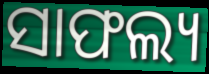
ସାଫଲ୍ଯ